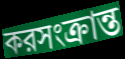
করসংক্রান্ত